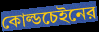
কোল্ডচেইনের